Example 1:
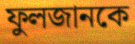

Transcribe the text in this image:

ফুলজানকে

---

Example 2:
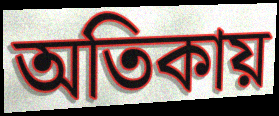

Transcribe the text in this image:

অতিকায়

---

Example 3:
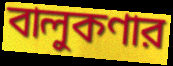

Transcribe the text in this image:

বালুকণার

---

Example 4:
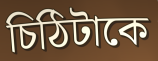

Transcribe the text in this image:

চিঠিটাকে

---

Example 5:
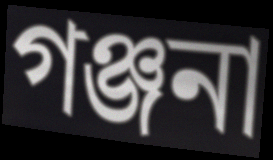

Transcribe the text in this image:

গঞ্জনা